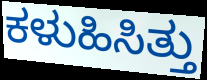
ಕಳುಹಿಸಿತ್ತು